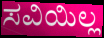
ಸವಿಯಿಲ್ಲ